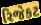
રિજેકટ